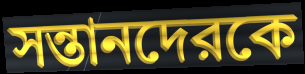
সন্তানদেরকে